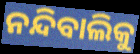
ନନ୍ଦିବାଲିକୁ